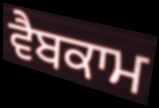
ਵੈਬਕਾਮ